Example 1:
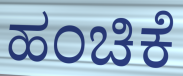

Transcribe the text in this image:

ಹಂಚಿಕೆ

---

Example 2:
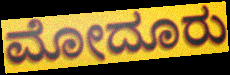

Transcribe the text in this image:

ಮೋದೂರು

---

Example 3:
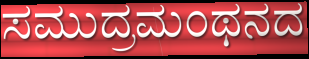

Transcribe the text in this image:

ಸಮುದ್ರಮಂಥನದ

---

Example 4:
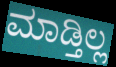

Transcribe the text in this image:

ಮಾಡ್ತಿಲ್ಲ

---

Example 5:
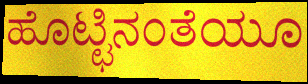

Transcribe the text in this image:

ಹೊಟ್ಟಿನಂತೆಯೂ